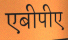
एबीपीए